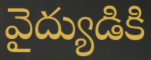
వైద్యుడికి